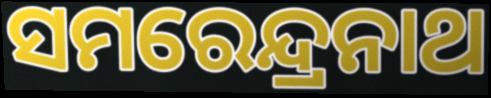
ସମରେନ୍ଦ୍ରନାଥ